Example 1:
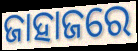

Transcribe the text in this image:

ଜାହାଜରେ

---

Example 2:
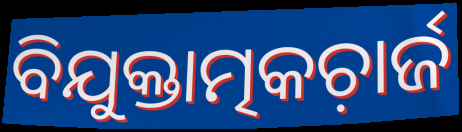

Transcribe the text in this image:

ବିଯୁକ୍ତାତ୍ମକଚ଼ାର୍ଜ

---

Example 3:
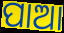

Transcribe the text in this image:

ପାଆ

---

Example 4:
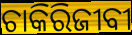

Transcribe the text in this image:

ଚାକିରିଜୀବୀ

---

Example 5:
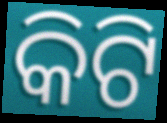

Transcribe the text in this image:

କିଟି